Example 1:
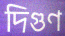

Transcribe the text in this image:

দিগুণ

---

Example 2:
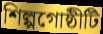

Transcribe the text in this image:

শিল্পগোষ্ঠীটি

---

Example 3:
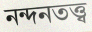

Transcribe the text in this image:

নন্দনতত্ত্ব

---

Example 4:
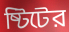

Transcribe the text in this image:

ষ্টিটের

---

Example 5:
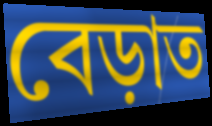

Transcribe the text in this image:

বেড়াত